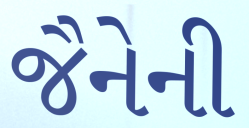
જૈનેની